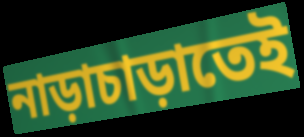
নাড়াচাড়াতেই